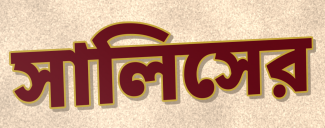
সালিসের